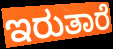
ಇರುತಾರೆ